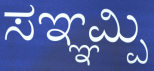
ಸಞ್ಞಮ್ಪಿ